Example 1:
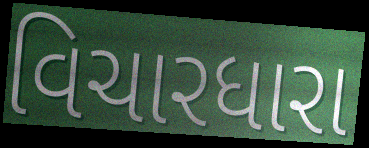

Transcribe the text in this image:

વિચારધારા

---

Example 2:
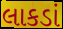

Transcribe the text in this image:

લાકડાં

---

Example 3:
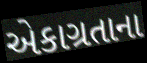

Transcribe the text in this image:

એકાગ્રતાના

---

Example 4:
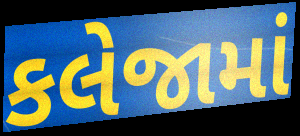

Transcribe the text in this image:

કલેજામાં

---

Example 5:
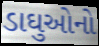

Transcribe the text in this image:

ડાઘુઓનો